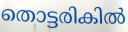
തൊട്ടരികിൽ